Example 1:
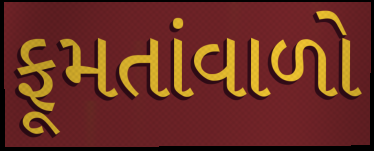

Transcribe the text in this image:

ફૂમતાંવાળો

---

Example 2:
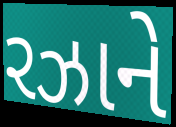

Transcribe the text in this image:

રઝાને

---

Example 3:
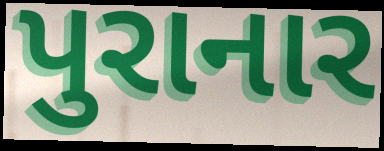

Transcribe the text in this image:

પુરાનાર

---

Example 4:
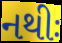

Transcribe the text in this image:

નથીઃ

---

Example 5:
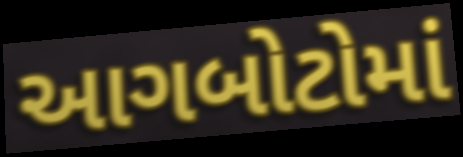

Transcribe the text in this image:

આગબોટોમાં